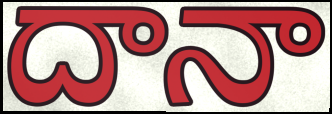
దానా